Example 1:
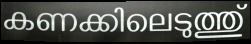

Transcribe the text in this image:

കണക്കിലെടുത്തു്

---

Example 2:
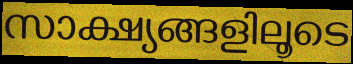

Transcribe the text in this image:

സാക്ഷ്യങ്ങളിലൂടെ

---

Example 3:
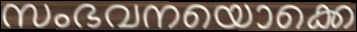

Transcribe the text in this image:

സംഭവനയൊക്കെ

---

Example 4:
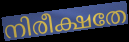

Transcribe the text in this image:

നിരീക്ഷതേ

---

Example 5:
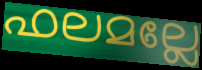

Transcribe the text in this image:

ഫലമല്ലേ